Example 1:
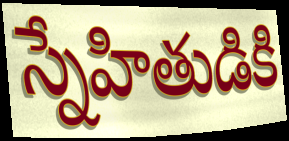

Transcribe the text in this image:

స్నేహితుడికి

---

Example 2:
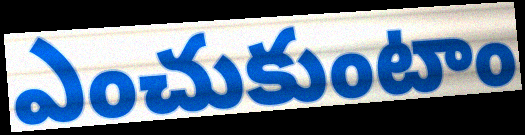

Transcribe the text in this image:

ఎంచుకుంటాం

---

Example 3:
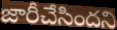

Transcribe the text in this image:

జారీచేసిందని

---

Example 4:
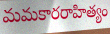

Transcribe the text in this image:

మమకారరాహిత్యం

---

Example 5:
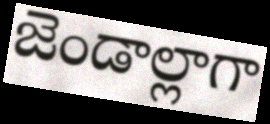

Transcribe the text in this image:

జెండాల్లాగా